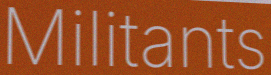
Militants